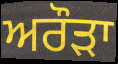
ਅਰੌੜਾ